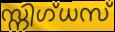
സ്നിഗ്ധസ്